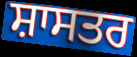
ਸ਼ਾਸਤਰ